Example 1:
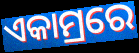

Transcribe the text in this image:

ଏକାମ୍ରରେ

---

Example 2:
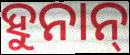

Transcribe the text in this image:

ହୁନାନ୍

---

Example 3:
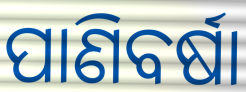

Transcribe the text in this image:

ପାଣିବର୍ଷା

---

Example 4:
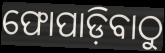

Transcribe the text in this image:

ଫୋପାଡ଼ିବାଠୁ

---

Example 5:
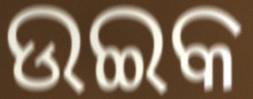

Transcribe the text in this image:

ଉଇକ